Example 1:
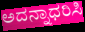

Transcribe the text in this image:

ಅದನ್ನಾಧರಿಸಿ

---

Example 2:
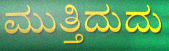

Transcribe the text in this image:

ಮುತ್ತಿದುದು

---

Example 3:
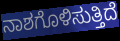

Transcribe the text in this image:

ನಾಶಗೊಳಿಸುತ್ತಿದೆ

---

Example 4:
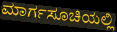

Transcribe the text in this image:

ಮಾರ್ಗಸೂಚಿಯಲ್ಲಿ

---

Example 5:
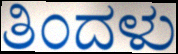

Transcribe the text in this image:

ತಿಂದಳು